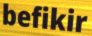
befikir